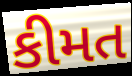
કીમત